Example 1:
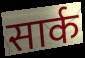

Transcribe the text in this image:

सार्क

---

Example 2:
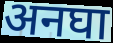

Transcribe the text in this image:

अनघा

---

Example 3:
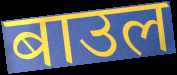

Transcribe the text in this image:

बाउल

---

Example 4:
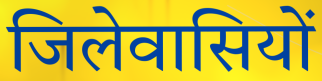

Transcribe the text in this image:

जिलेवासियों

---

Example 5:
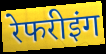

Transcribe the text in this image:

रेफरीइंग